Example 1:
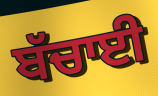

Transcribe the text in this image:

ਬੱਚਾਈ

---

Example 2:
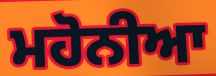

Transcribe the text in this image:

ਮਹੋਨੀਆ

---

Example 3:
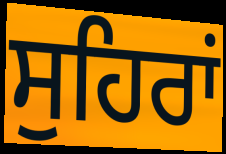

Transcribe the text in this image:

ਸੁਹਿਰਾਂ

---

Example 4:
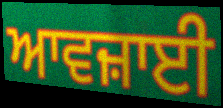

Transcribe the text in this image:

ਆਵਜ਼ਾਈ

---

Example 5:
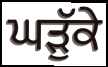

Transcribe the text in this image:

ਘੜੁੱਕੇ